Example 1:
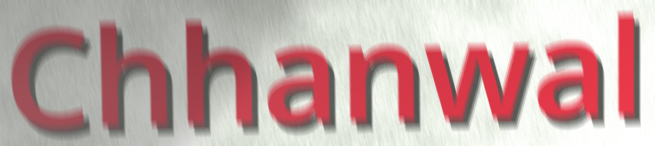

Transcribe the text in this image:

Chhanwal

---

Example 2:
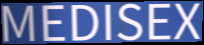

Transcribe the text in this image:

MEDISEX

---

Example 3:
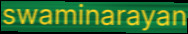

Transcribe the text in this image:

swaminarayan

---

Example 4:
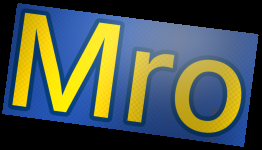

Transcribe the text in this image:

Mro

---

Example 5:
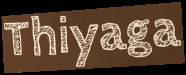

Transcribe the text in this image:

Thiyaga